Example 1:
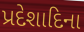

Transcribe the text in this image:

પ્રદેશાદિના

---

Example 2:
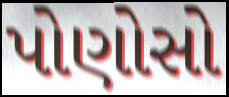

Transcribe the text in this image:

પોણોસો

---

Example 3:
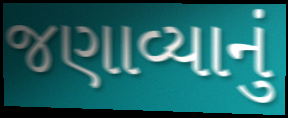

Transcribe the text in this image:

જણાવ્યાનું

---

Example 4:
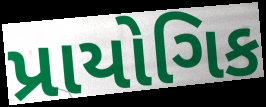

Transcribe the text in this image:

પ્રાયોગિક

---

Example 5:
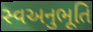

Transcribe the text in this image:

સ્વઅનુભૂતિ